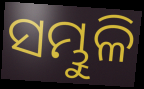
ସମ୍ଭୁଳି